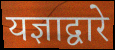
यज्ञाद्वारे